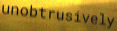
unobtrusively